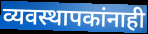
व्यवस्थापकांनाही